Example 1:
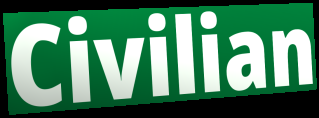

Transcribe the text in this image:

Civilian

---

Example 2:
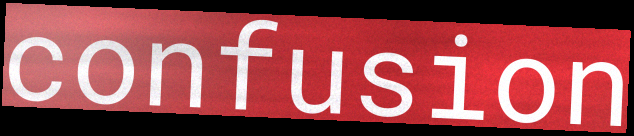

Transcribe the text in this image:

confusion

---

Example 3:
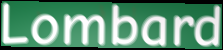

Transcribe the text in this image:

Lombard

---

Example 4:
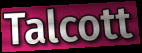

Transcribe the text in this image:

Talcott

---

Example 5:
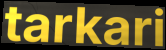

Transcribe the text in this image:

tarkari